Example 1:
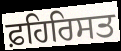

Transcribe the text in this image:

ਫ਼ਹਿਰਿਸਤ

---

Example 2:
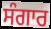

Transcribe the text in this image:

ਸੰਗਾਰ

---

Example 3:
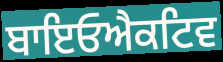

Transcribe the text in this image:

ਬਾਇਓਐਕਟਿਵ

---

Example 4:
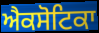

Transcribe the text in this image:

ਐਕਸੋਟਿਕਾ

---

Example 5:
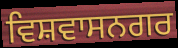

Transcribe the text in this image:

ਵਿਸ਼ਵਾਸਨਗਰ